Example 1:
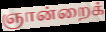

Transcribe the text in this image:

ஞான்றைக்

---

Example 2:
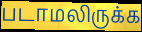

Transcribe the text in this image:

படாமலிருக்க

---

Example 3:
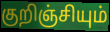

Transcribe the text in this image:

குறிஞ்சியும்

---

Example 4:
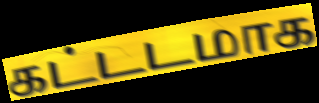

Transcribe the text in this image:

கட்டடமாக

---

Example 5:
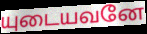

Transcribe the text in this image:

யுடையவனே